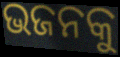
ଭଜନକୁ